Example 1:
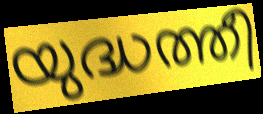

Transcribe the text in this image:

യുദ്ധത്തീ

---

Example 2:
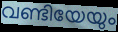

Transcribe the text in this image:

വണ്ടിയേയും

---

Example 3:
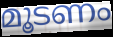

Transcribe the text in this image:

മൂടണം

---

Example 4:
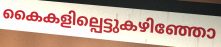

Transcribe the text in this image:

കൈകളില്പെട്ടുകഴിഞ്ഞോ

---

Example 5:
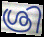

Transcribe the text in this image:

ശ്രി